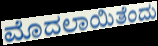
ಮೊದಲಾಯಿತೆಂದು